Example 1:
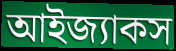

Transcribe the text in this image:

আইজ্যাকস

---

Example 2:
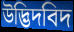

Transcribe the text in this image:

উদ্ভিদবিদ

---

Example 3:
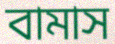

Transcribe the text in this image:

বামাস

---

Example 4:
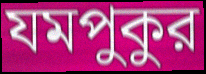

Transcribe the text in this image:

যমপুকুর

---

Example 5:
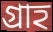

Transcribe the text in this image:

গ্রাহ